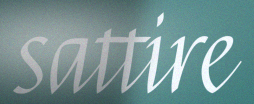
sattire